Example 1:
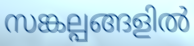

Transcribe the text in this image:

സങ്കല്പങ്ങളിൽ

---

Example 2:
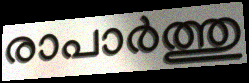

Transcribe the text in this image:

രാപാർത്തു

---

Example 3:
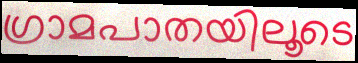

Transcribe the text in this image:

ഗ്രാമപാതയിലൂടെ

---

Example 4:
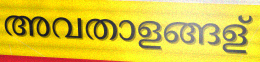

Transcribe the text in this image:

അവതാളങ്ങള്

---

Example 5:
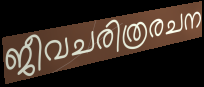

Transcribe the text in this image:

ജീവചരിത്രരചന